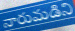
నారుమడిని